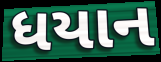
ધયાન